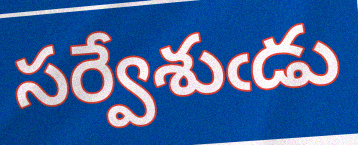
సర్వేశుఁడు